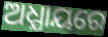
ଅଧ୍ଯାୟରେ